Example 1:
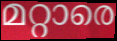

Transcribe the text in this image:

മറ്റാരെ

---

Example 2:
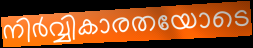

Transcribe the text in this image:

നിർവ്വികാരതയോടെ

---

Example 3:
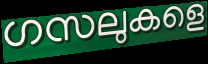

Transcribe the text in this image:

ഗസലുകളെ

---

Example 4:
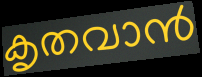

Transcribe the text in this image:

കൃതവാൻ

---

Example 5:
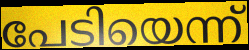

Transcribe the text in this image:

പേടിയെന്ന്